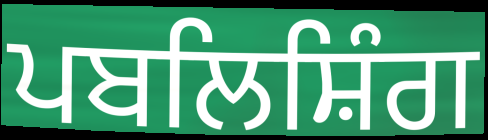
ਪਬਲਿਸ਼ਿੰਗ